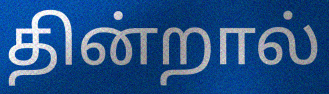
தின்றால்